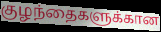
குழந்தைகளுக்கான